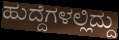
ಹುದ್ದೆಗಳಲ್ಲಿದ್ದು